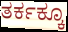
ತರ್ಕಕ್ಕೂ